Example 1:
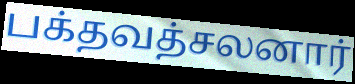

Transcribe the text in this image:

பக்தவத்சலனார்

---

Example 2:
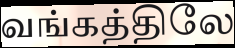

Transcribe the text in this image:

வங்கத்திலே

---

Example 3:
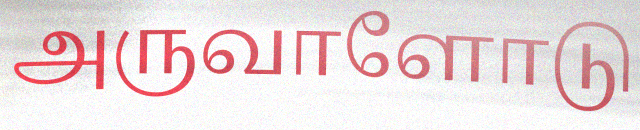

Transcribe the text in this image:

அருவாளோடு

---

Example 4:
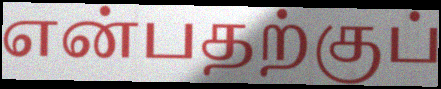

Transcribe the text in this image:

என்பதற்குப்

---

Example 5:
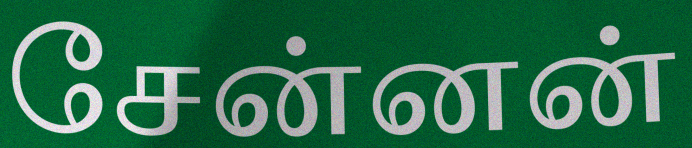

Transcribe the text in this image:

சேன்னன்